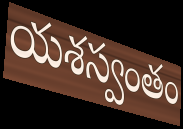
యశస్వంతం